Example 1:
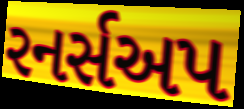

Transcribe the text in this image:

રનર્સઅપ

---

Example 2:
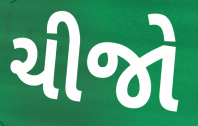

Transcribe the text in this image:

ચીજો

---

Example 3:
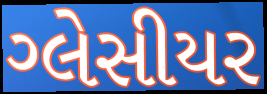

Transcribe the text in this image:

ગ્લેસીયર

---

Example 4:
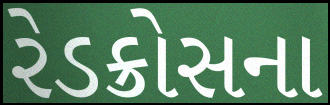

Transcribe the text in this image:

રેડક્રોસના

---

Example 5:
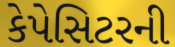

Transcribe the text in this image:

કેપેસિટરની